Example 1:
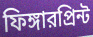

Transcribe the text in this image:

ফিঙ্গারপ্রিন্ট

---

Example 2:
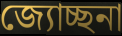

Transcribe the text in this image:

জ্যোচ্ছনা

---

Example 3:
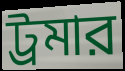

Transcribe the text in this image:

ট্রমার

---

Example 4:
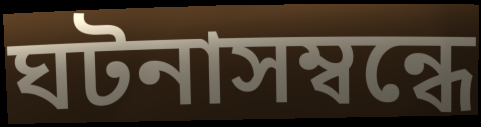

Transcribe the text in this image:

ঘটনাসম্বন্ধে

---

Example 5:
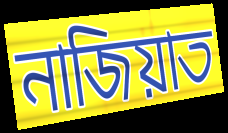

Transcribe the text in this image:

নাজিয়াত